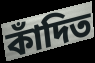
কাঁদিত